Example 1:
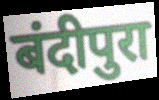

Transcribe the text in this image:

बंदीपुरा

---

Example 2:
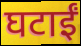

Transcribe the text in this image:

घटाईं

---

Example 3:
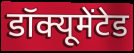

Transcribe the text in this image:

डॉक्यूमेंटेड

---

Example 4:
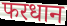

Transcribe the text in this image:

फरधान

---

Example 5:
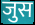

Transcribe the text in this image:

जुस